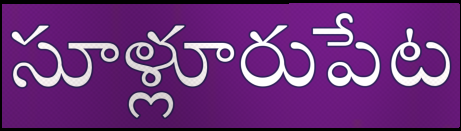
సూళ్లూరుపేట